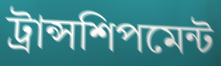
ট্রান্সশিপমেন্ট